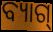
ବ୍ୟାଗ୍